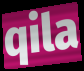
qila